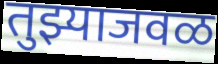
तुझ्याजवळ